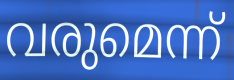
വരുമെന്ന്